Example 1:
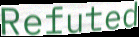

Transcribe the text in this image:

Refuted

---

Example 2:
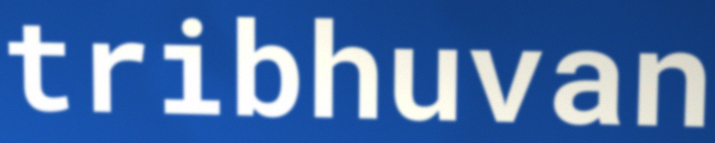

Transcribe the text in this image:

tribhuvan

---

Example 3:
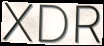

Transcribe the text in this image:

XDR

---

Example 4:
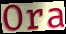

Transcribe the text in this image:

Ora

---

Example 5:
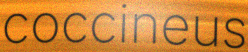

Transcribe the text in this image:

coccineus